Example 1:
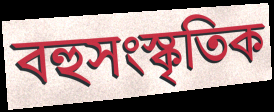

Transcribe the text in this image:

বহুসংস্কৃতিক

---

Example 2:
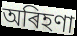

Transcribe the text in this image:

অৰিহণা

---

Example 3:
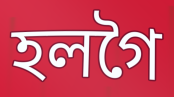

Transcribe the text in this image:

হলগৈ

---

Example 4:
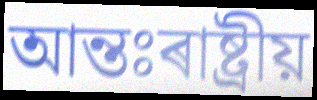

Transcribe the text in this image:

আন্তঃৰাষ্ট্ৰীয়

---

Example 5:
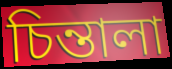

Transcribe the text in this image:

চিন্তালা